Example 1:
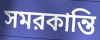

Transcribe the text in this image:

সমরকান্তি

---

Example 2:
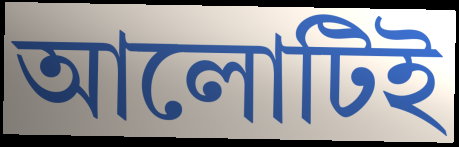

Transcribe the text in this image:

আলোটিই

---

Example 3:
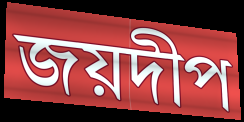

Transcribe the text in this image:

জয়দীপ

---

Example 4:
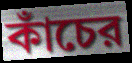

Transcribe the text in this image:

কাঁচের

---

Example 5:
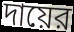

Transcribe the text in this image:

দায়ের